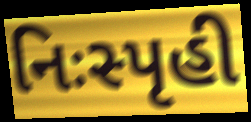
નિઃસ્પૃહી